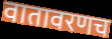
वातावरणच